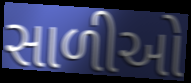
સાળીઓ